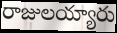
రాజులయ్యారు